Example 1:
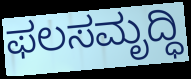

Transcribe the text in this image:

ಫಲಸಮೃದ್ಧಿ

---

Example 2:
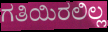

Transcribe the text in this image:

ಗತಿಯಿರಲಿಲ್ಲ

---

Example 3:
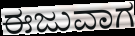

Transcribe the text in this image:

ಈಜುವಾಗ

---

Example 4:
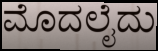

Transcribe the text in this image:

ಮೊದಲೈದು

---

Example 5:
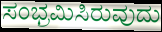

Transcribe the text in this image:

ಸಂಭ್ರಮಿಸಿರುವುದು